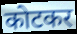
कोटकर